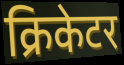
क्रिकेटर